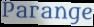
Parange